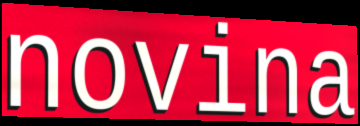
novina